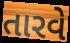
તારવે